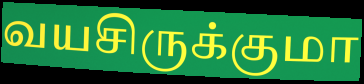
வயசிருக்குமா